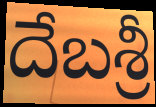
దేబశ్రీ